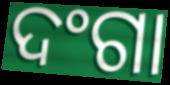
ଦଂଗା